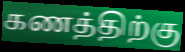
கணத்திற்கு